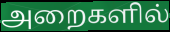
அறைகளில்